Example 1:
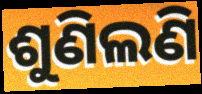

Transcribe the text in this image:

ଶୁଣିଲଣି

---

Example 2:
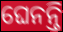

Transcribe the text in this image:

ଘେନନ୍ତି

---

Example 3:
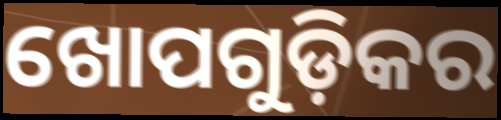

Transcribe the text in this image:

ଖୋପଗୁଡ଼ିକର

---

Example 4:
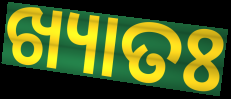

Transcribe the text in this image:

ଖ୍ୟାତଃ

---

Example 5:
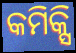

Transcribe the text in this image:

କମିକ୍ସି